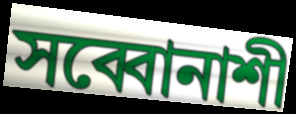
সব্বোনাশী